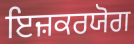
ਇਜ਼ਕਰਯੋਗ